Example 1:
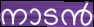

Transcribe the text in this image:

നാടൻ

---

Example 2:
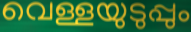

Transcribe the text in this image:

വെള്ളയുടുപ്പും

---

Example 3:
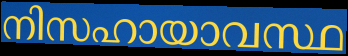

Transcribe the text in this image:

നിസഹായാവസ്ഥ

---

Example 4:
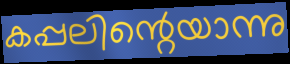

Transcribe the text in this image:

കപ്പലിന്റെയാന്നു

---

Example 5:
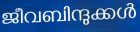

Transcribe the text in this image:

ജീവബിന്ദുക്കൾ